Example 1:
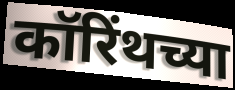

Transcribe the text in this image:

कॉरिंथच्या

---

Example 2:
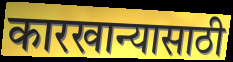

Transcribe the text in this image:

कारखान्यासाठी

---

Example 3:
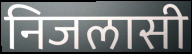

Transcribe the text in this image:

निजलासी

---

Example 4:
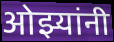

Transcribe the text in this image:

ओझ्यांनी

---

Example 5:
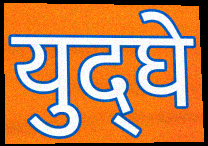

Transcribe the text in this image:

युद्घे